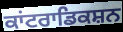
ਕਾਂਟਰਾਡਿਕਸ਼ਨ